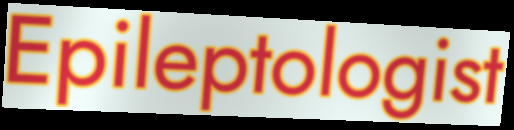
Epileptologist